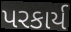
પરકાર્ય